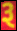
રૂ